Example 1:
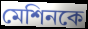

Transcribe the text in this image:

মেশিনকে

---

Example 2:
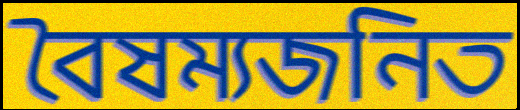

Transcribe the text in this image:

বৈষম্যজনিত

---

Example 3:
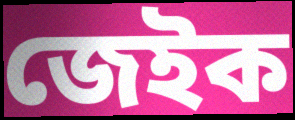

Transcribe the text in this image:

জেইক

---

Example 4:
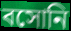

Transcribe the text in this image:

বসোনি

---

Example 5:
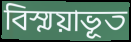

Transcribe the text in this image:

বিস্ময়াভূত